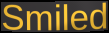
Smiled